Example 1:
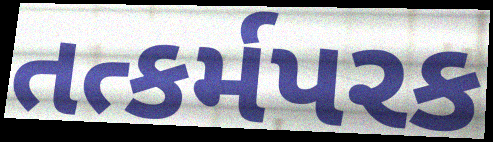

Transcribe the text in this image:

તત્કર્મપરક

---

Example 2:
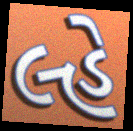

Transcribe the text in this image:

લ્હે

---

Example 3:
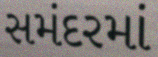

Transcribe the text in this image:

સમંદરમાં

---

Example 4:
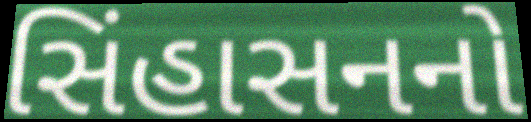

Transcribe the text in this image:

સિંહાસનનો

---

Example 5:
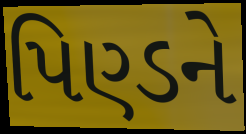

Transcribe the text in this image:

પિણ્ડને